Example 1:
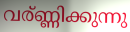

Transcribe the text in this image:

വര്ണ്ണിക്കുന്നു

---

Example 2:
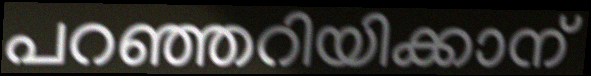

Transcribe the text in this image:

പറഞ്ഞറിയിക്കാന്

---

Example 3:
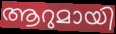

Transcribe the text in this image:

ആറുമായി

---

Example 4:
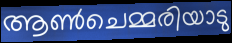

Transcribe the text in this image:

ആൺചെമ്മരിയാടു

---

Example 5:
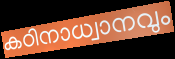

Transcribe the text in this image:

കഠിനാധ്വാനവും